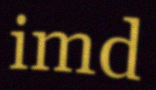
imd